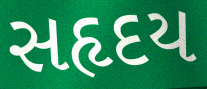
સહૃદય